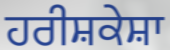
ਹਰੀਸ਼ਕੇਸ਼ਾ